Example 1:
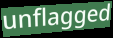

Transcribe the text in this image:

unflagged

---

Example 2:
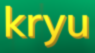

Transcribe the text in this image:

kryu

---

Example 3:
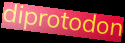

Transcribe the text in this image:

diprotodon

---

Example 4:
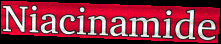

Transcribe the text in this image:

Niacinamide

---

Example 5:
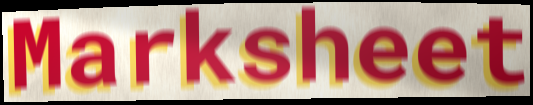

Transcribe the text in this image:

Marksheet